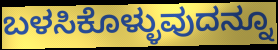
ಬಳಸಿಕೊಳ್ಳುವುದನ್ನೂ